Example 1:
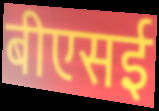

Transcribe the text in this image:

बीएसई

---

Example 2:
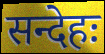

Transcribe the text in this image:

सन्देहः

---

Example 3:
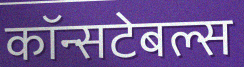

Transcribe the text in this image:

कॉन्सटेबल्स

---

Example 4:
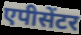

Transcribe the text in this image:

एपीसेंटर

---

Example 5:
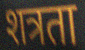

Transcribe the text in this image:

शत्रता